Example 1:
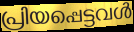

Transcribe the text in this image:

പ്രിയപ്പെട്ടവൾ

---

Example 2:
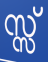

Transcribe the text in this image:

സ്സ്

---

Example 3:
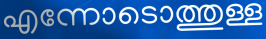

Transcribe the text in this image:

എന്നോടൊത്തുള്ള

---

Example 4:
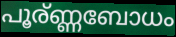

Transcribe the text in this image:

പൂര്ണ്ണബോധം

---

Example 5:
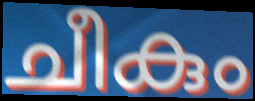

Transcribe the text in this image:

ചീകും